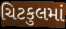
ચિટકુલમાં